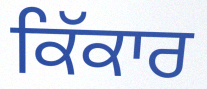
ਕਿੱਕਾਰ